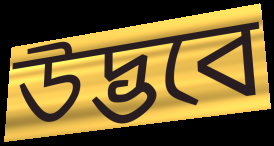
উদ্ভবে